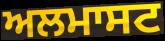
ਅਲਮਾਸਟ